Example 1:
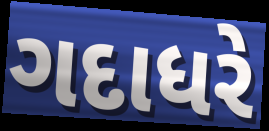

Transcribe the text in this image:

ગદાધરે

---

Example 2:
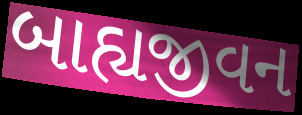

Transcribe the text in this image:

બાહ્યજીવન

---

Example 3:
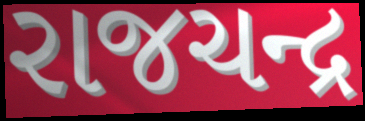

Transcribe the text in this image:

રાજચન્દ્ર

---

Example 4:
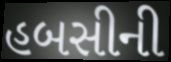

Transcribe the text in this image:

હબસીની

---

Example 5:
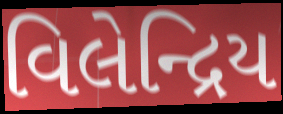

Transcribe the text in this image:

વિલેન્દ્રિય